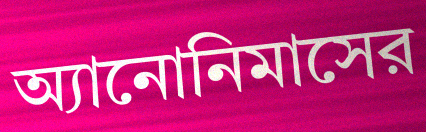
অ্যানোনিমাসের